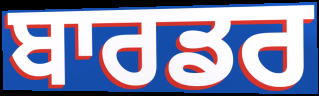
ਬਾਰਡਰ